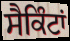
ਸੈਕਿੰਟਾਂ